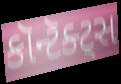
કૉન્ટૅક્ટ્સ